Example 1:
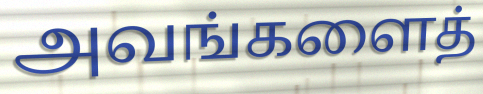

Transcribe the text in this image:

அவங்களைத்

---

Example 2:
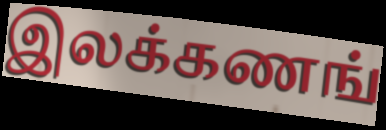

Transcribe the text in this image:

இலக்கணங்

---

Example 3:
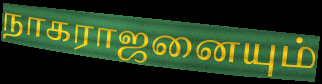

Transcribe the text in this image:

நாகராஜனையும்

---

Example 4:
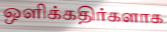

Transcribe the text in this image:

ஒளிக்கதிர்களாக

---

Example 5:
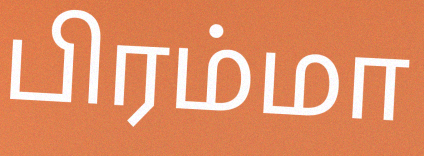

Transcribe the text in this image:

பிரம்மா